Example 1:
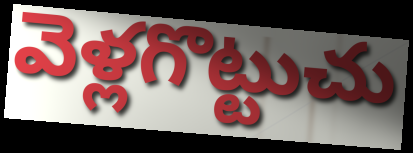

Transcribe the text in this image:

వెళ్లగొట్టుచు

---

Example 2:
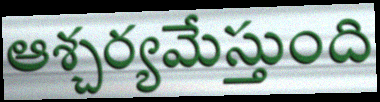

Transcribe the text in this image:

ఆశ్చర్యమేస్తుంది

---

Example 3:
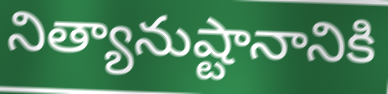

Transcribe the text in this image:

నిత్యానుష్టానానికి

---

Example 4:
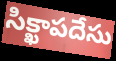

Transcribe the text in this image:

సిక్ఖాపదేసు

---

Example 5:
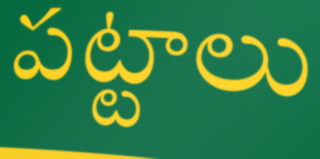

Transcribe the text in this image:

పట్టాలు